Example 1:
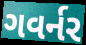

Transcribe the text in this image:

ગવર્નર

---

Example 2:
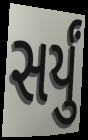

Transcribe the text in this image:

સર્યું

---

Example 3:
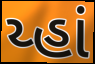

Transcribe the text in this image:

ય્હાં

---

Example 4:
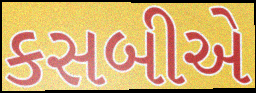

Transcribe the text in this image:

કસબીએ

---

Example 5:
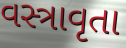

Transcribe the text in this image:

વસ્ત્રાવૃતા